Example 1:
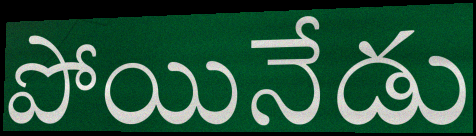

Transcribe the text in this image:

పోయినేడు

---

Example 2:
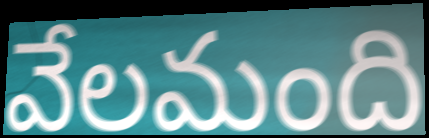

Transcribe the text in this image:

వేలమంది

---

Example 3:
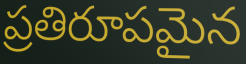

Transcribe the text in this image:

ప్రతిరూపమైన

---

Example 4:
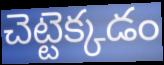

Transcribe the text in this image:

చెట్టెక్కడం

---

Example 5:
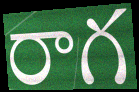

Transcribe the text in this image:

రాగ